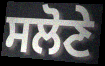
ਸਲੋਣੇ